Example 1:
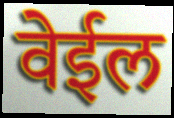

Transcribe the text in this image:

वेईल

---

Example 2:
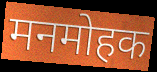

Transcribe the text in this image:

मनमोहक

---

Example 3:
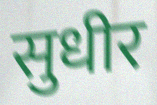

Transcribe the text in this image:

सुधीर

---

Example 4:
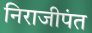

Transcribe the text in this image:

निराजीपंत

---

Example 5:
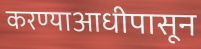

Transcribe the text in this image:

करण्याआधीपासून